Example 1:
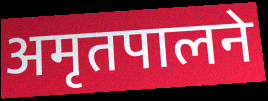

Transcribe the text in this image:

अमृतपालने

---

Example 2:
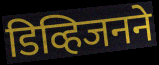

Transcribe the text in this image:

डिव्हिजनने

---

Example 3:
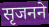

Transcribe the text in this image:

सृजनने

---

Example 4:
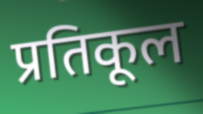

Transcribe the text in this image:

प्रतिकूल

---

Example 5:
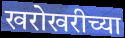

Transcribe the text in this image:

खरोखरीच्या